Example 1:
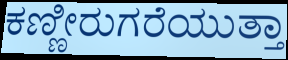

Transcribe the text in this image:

ಕಣ್ಣೀರುಗರೆಯುತ್ತಾ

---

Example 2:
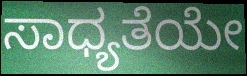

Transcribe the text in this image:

ಸಾಧ್ಯತೆಯೇ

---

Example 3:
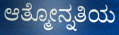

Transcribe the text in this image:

ಆತ್ಮೋನ್ನತಿಯ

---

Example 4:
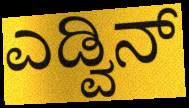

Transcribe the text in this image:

ಎಡ್ವಿನ್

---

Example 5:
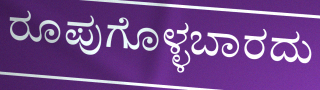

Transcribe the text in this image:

ರೂಪುಗೊಳ್ಳಬಾರದು